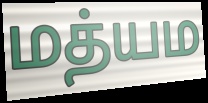
மத்யம